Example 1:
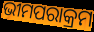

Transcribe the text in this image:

ଭୀମପରାକ୍ରମ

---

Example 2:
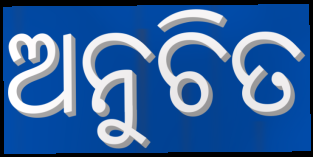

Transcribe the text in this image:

ଅନୁଚିତ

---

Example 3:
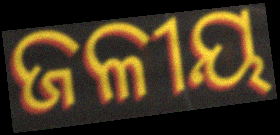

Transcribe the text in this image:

ଜଳୀୟ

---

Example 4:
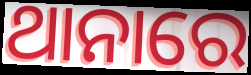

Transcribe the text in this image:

ଥାନାରେ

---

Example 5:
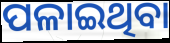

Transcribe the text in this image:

ପଳାଇଥିବା